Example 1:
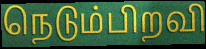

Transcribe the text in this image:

நெடும்பிறவி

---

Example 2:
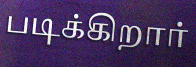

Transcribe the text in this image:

படிக்கிறார்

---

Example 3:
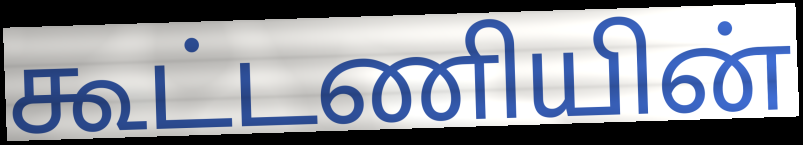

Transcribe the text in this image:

கூட்டணியின்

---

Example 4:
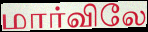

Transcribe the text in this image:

மார்விலே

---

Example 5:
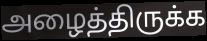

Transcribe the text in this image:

அழைத்திருக்க